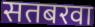
सतबरवा